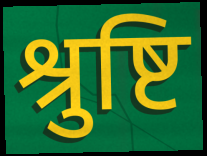
श्रुष्टि